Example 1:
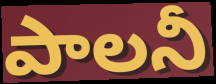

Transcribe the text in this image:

పాలనీ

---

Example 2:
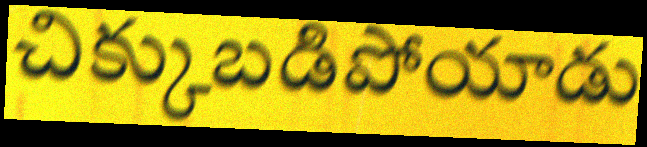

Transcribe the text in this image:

చిక్కుబడిపోయాడు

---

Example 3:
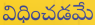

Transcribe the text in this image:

విధించడమే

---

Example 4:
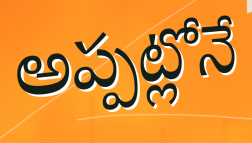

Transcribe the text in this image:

అప్పట్లోనే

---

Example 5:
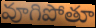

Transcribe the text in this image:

వూగిపోతూ